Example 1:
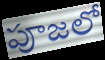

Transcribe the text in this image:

పూజలో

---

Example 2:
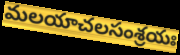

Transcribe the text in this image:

మలయాచలసంశ్రయః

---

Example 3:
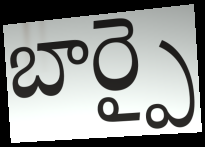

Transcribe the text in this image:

బార్పై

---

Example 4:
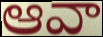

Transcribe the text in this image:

ఆవా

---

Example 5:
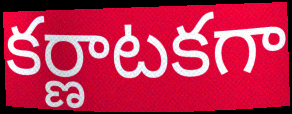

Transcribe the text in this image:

కర్ణాటకగా